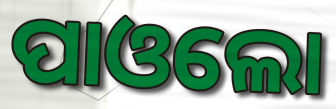
ପାଓଲୋ